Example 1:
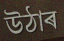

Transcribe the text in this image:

উঠাৰ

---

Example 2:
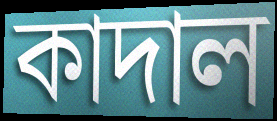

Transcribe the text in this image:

কাদাল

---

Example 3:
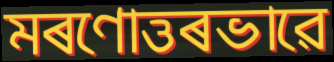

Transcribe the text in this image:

মৰণোত্তৰভাৱে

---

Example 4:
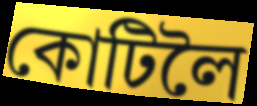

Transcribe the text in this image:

কোটিলৈ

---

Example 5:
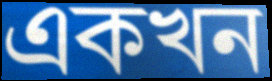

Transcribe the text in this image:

একখন